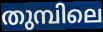
തുമ്പിലെ